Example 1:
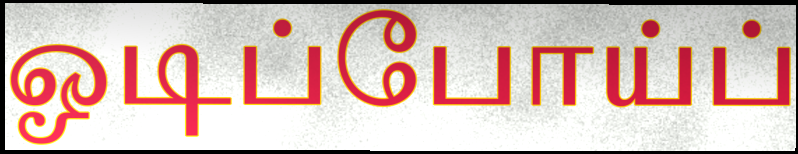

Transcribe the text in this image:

ஓடிப்போய்ப்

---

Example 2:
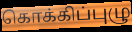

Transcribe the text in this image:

கொக்கிப்புழு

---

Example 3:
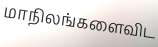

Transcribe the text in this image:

மாநிலங்களைவிட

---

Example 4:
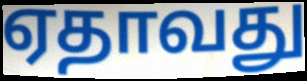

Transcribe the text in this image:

ஏதாவது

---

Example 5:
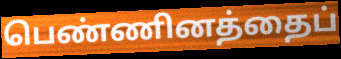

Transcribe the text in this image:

பெண்ணினத்தைப்